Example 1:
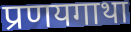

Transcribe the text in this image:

प्रणयगाथा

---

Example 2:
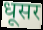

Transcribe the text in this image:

धूसर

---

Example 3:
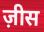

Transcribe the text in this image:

ज़ीस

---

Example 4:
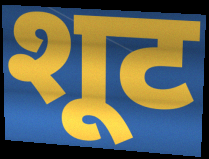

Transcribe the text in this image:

शूट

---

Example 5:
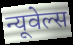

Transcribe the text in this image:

न्यूवेल्स